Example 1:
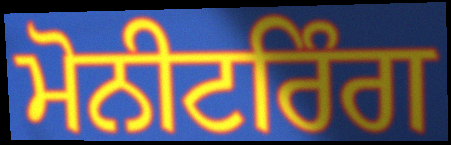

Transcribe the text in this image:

ਮੋਨੀਟਰਿੰਗ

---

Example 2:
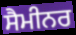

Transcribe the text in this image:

ਸੈਮੀਨਰ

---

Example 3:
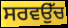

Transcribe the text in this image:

ਸਰਵਉੱਚ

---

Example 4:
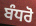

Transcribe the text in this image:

ਬੰਧਰੋ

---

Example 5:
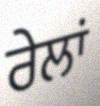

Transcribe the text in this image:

ਰੇਲਾਂ